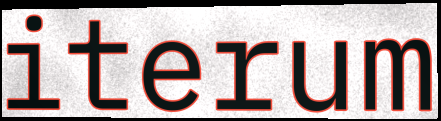
iterum